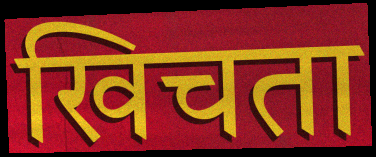
खिचता